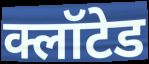
क्लॉटेड